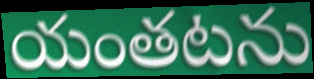
యంతటను